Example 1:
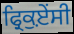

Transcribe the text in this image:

ਫ੍ਰਿਕ਼ੁਏਂਸੀ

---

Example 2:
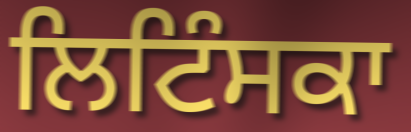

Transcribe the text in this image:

ਲਿਟਿੰਸਕਾ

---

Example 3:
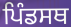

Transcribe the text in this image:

ਪਿੰਡਸਥ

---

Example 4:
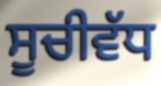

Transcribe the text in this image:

ਸੂਚੀਵੱਧ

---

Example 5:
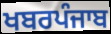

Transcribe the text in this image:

ਖਬਰਪੰਜਾਬ